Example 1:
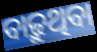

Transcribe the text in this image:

ବାଢ଼ୁଥିବା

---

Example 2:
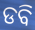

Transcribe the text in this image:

ଡବି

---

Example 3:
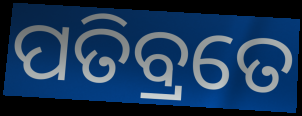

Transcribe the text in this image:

ପତିବ୍ରତେ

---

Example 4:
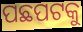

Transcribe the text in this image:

ପଛପଟକୁ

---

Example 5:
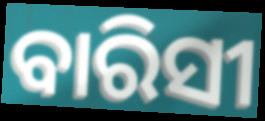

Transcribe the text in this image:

ବାରିସୀ